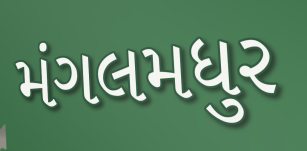
મંગલમધુર